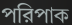
পরিপাক